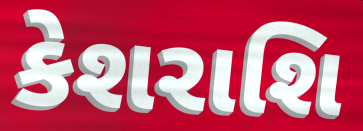
કેશરાશિ